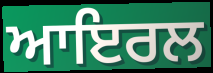
ਆਇਰਲ